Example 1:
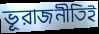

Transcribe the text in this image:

ভূরাজনীতিই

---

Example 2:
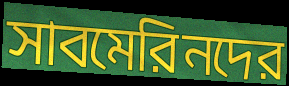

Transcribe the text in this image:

সাবমেরিনদের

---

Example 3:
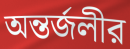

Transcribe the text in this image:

অন্তর্জলীর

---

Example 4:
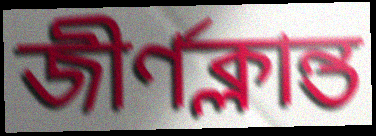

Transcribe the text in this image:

জীর্ণক্লান্ত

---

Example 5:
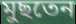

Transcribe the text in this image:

মুছতেন